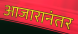
आजारानंतर